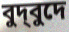
বুদ্‌বুদে